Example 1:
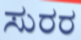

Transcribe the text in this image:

ಸುರರ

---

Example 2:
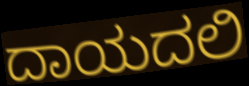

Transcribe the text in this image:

ದಾಯದಲಿ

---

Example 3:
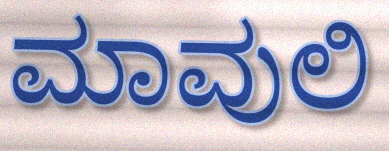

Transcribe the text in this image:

ಮಾವುಲಿ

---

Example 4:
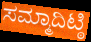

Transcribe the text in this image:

ಸಮ್ಮಾದಿಟ್ಠಿ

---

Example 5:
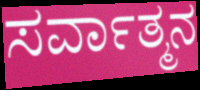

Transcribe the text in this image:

ಸರ್ವಾತ್ಮನ